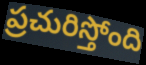
ప్రచురిస్తోంది